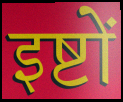
इष्टों